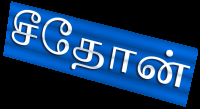
சீதோன்